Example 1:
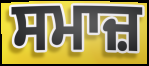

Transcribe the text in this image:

ਸਮਾਜ਼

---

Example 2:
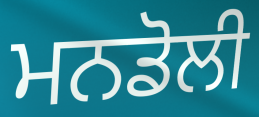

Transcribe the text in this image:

ਮਨਡੋਲੀ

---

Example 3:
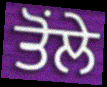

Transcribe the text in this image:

ਤੋਂਲੇ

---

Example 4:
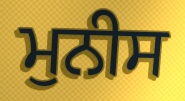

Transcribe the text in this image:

ਮੁਨੀਸ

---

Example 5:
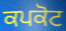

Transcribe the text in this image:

ਕਪਕੋਟ